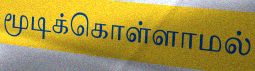
மூடிக்கொள்ளாமல்